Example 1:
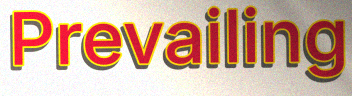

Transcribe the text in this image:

Prevailing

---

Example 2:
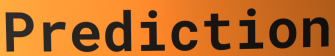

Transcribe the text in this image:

Prediction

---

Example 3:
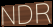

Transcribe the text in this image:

NDR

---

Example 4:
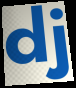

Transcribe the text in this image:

dj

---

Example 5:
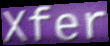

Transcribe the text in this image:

Xfer